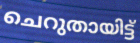
ചെറുതായിട്ട്